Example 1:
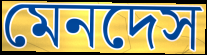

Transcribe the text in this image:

মেনদেস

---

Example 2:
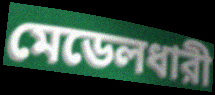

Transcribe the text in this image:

মেডেলধারী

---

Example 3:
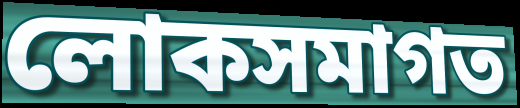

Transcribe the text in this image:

লোকসমাগত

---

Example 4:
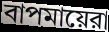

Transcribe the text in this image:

বাপমায়েরা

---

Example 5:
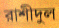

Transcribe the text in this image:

রাশীদুল